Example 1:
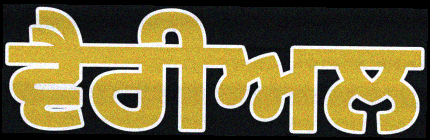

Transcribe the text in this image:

ਵੈਰੀਅਲ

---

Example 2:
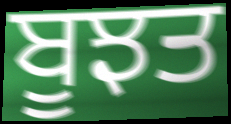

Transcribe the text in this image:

ਬੂਝਤ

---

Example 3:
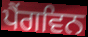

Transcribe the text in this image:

ਪੈਂਗਵਿਨ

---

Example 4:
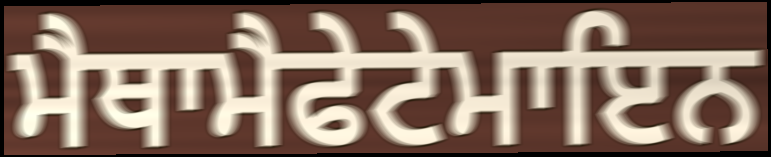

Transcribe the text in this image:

ਮੈਥਾਮੈਫੇਟੇਮਾਇਨ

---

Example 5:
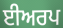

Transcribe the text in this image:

ਈਅਰਪ